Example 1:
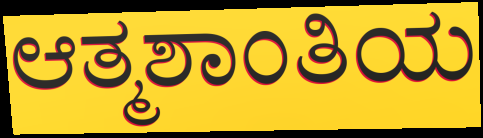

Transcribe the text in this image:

ಆತ್ಮಶಾಂತಿಯ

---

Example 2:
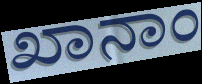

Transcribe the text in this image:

ಖಾನಾಂ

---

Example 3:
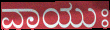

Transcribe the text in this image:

ವಾಯುಃ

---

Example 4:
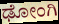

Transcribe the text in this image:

ಢೋಂಗಿ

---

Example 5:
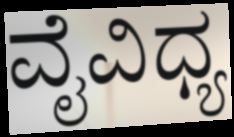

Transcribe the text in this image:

ವೈವಿಧ್ಯ